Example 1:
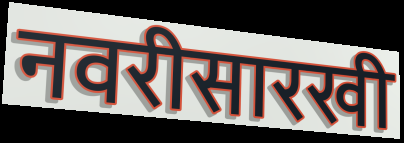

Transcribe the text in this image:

नवरीसारखी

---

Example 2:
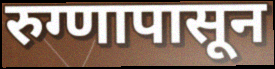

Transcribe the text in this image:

रुग्णापासून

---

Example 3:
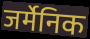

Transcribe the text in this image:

जर्मेनिक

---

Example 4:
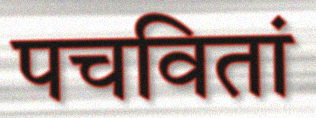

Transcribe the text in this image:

पचवितां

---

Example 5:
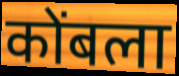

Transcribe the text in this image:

कोंबला